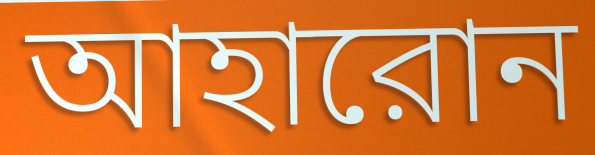
আহারোন